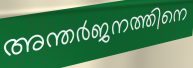
അന്തർജനത്തിനെ